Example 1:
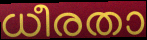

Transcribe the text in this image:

ധീരതാ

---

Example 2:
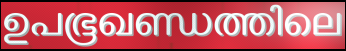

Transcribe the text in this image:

ഉപഭൂഖണ്ഡത്തിലെ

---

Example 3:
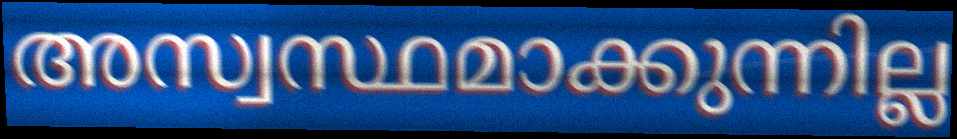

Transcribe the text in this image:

അസ്വസ്ഥമാക്കുന്നില്ല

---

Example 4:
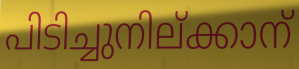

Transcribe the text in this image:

പിടിച്ചുനില്ക്കാന്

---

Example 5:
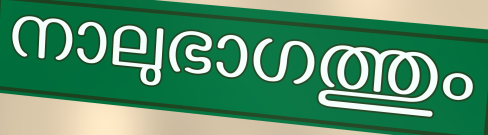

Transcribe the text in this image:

നാലുഭാഗത്തും